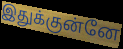
இதுக்குன்னே